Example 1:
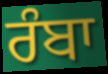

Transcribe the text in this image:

ਰੰਬਾ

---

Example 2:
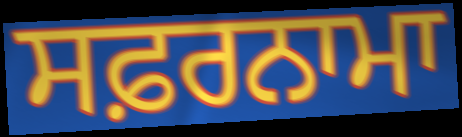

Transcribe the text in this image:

ਸਫ਼ਰਨਾਮਾ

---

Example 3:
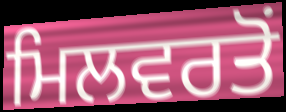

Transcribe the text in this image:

ਮਿਲਵਰਤੋਂ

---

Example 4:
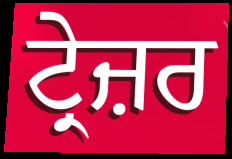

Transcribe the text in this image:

ਟ੍ਰੇਜ਼ਰ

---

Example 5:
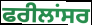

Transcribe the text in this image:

ਫਰੀਲਾਂਸਰ